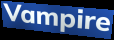
Vampire